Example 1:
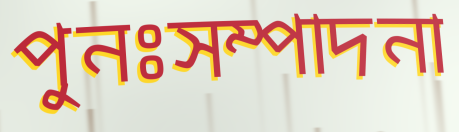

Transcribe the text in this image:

পুনঃসম্পাদনা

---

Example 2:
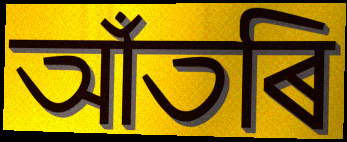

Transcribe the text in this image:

আঁতৰি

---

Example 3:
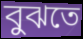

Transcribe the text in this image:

বুঝতে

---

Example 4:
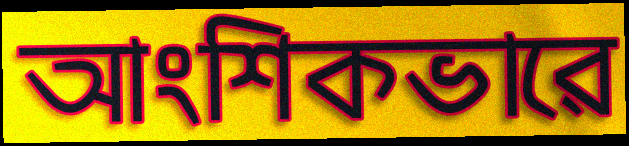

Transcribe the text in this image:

আংশিকভাৱে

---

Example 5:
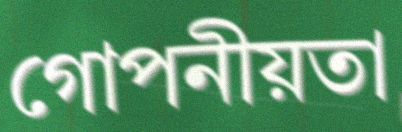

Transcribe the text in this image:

গোপনীয়তা